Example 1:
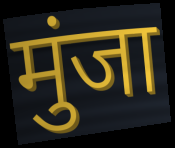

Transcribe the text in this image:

मुंजा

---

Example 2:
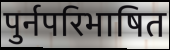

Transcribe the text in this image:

पुर्नपरिभाषित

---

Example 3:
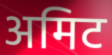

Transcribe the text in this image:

अमिट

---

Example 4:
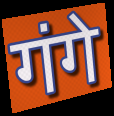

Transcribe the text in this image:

गंगे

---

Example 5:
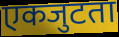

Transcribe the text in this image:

एकजुटता